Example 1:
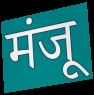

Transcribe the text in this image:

मंजू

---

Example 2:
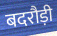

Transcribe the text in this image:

बदरौड़ी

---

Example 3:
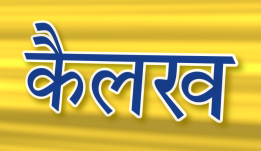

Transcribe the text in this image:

कैलख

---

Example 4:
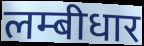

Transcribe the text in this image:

लम्बीधार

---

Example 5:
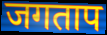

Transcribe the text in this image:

जगताप